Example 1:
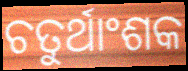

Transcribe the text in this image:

ଚତୁର୍ଥାଂଶକ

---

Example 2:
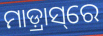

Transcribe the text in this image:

ମାଡ଼୍ରାସ୍‌ରେ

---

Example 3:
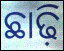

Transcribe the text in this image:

ଛାଢ଼ି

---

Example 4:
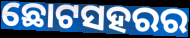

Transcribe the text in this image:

ଛୋଟସହରର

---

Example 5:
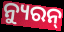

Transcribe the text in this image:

ନ୍ୟୁରନ୍